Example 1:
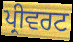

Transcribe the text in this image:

ਪ੍ਰੀਵਰਟ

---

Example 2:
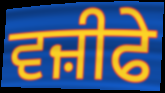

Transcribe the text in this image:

ਵਜ਼ੀਫੇ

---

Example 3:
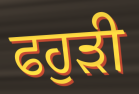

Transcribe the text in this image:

ਫਹੁੜੀ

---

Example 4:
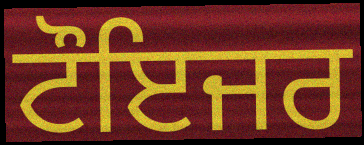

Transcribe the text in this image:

ਟੌਇਜਰ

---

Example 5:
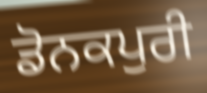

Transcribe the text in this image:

ਡੋਨਕਪੁਰੀ